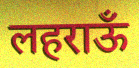
लहराऊँ